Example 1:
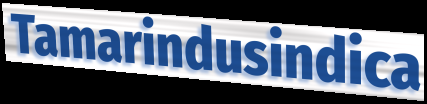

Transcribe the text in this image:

Tamarindusindica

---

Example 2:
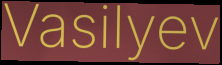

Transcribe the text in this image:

Vasilyev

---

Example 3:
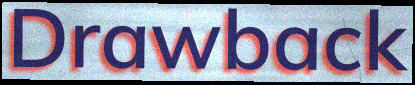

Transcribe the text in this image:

Drawback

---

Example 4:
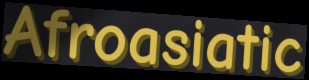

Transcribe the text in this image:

Afroasiatic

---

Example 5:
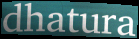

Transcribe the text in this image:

dhatura